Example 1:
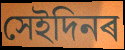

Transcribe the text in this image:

সেইদিনৰ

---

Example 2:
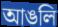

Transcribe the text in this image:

আঙলি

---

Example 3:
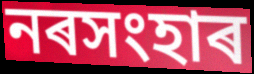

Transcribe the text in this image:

নৰসংহাৰ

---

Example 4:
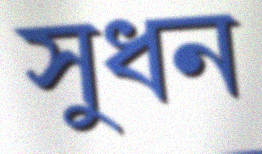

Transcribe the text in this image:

সুধন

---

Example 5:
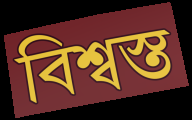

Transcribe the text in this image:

বিশ্বস্ত